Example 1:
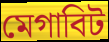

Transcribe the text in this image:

মেগাবিট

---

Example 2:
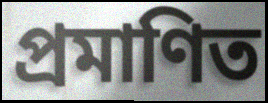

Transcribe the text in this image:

প্রমাণিত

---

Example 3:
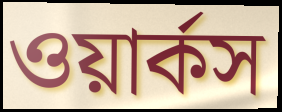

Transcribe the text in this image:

ওয়ার্কস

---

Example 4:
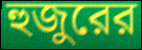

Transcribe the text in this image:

হুজুরের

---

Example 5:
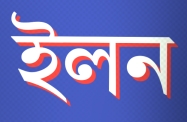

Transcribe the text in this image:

ইলন